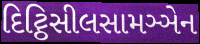
દિટ્ઠિસીલસામઞ્ઞેન